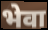
भेवा